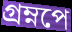
গ্রম্নপে